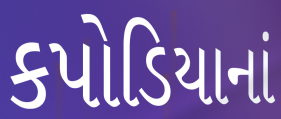
કપોડિયાનાં